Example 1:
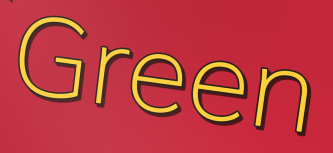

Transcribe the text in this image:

Green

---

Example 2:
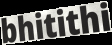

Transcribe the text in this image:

bhitithi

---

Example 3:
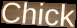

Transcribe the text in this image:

Chick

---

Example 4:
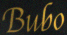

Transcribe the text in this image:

Bubo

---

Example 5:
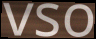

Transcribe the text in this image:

vso